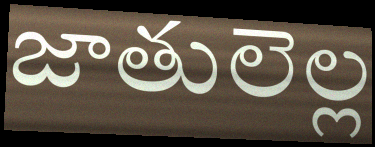
జాతులెల్ల